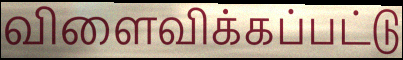
விளைவிக்கப்பட்டு